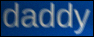
daddy